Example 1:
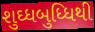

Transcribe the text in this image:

શુઘ્ધબુધ્ધિથી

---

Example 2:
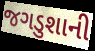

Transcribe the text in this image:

જગડુશાની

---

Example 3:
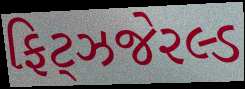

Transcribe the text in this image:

ફિટ્ઝજેરલ્ડ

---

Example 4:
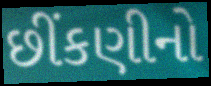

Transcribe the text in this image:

છીંકણીનો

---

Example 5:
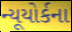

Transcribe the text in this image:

ન્યૂયોર્કના